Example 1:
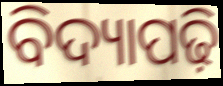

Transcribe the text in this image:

ବିଦ୍ୟାପଢ଼ି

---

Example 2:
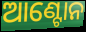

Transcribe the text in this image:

ଆଣ୍ଟୋନ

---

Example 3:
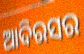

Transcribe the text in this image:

ଆଦିରସର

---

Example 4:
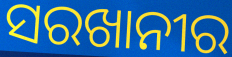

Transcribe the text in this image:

ସରଖାନୀର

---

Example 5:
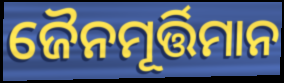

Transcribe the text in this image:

ଜୈନମୂର୍ତ୍ତିମାନ